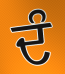
ਦੰ